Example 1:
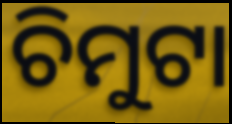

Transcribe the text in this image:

ଚିମୁଟା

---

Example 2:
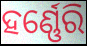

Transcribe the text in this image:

ହର୍ଣ୍ଣେରି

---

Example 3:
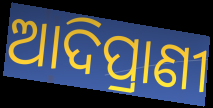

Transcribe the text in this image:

ଆଦିପ୍ରାଣୀ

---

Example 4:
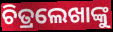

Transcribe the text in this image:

ଚିତ୍ରଲେଖାଙ୍କୁ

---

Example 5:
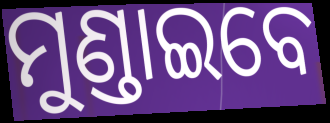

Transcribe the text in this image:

ମୁଣ୍ଡାଇବେ